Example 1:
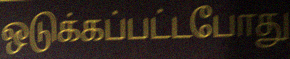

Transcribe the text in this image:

ஒடுக்கப்பட்டபோது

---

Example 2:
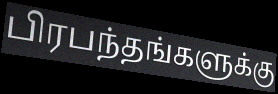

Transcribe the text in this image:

பிரபந்தங்களுக்கு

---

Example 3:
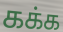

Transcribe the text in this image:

கக்க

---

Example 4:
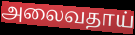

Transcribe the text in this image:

அலைவதாய்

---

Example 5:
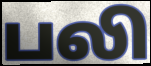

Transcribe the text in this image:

பலி